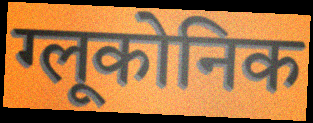
ग्लूकोनिक